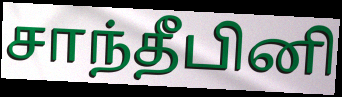
சாந்தீபினி